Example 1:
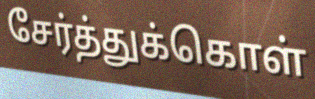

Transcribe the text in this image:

சேர்த்துக்கொள்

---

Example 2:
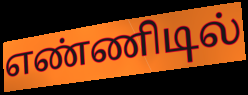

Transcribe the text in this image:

எண்ணிடில்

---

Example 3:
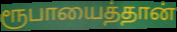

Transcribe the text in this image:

ரூபாயைத்தான்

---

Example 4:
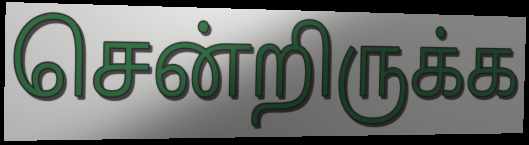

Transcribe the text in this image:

சென்றிருக்க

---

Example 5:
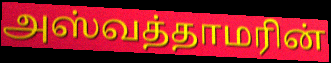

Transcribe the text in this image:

அஸ்வத்தாமரின்